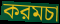
করমচা